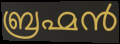
ബ്രഹ്മൻ